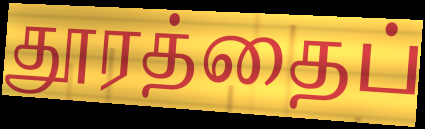
தூரத்தைப்